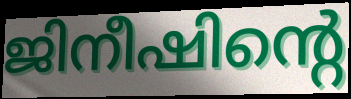
ജിനീഷിന്റെ